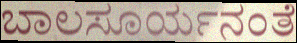
ಬಾಲಸೂರ್ಯನಂತೆ